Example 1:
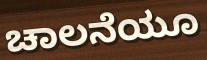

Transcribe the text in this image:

ಚಾಲನೆಯೂ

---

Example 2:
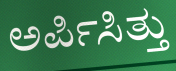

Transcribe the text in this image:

ಅರ್ಪಿಸಿತ್ತು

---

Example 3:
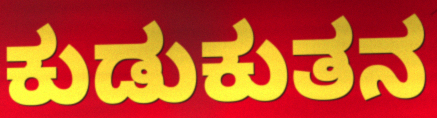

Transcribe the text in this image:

ಕುಡುಕುತನ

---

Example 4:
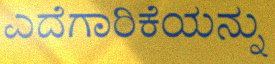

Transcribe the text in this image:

ಎದೆಗಾರಿಕೆಯನ್ನು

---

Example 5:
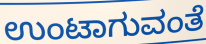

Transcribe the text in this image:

ಉಂಟಾಗುವಂತೆ